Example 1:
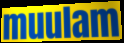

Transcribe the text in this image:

muulam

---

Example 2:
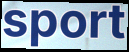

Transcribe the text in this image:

sport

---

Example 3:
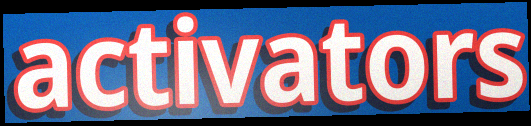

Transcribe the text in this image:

activators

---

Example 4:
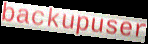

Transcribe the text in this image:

backupuser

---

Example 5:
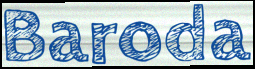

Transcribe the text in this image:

Baroda